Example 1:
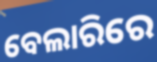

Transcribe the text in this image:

ବେଲାରିରେ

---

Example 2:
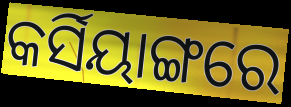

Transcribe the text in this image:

କର୍ସିୟାଙ୍ଗରେ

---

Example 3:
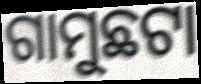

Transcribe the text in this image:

ଗାମୁଛଟା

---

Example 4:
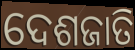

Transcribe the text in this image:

ଦେଶଜାତି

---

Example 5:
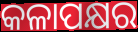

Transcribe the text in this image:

କଳାପକ୍ଷର